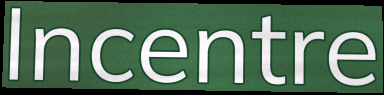
Incentre